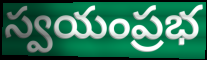
స్వయంప్రభ